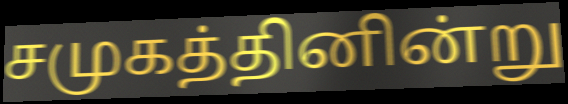
சமுகத்தினின்று